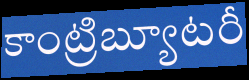
కాంట్రిబ్యూటరీ